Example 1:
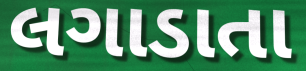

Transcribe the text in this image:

લગાડાતા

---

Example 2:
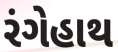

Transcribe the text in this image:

રંગેહાથ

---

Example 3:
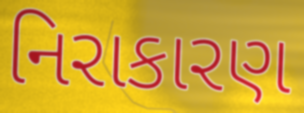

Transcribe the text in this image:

નિરાકારણ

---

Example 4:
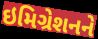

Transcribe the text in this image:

ઇમિગ્રેશનને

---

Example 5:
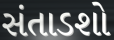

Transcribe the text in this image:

સંતાડશો